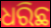
ଧରିଛ